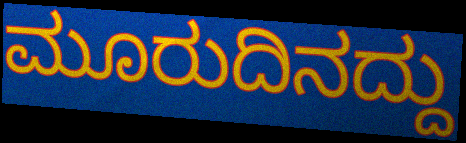
ಮೂರುದಿನದ್ದು